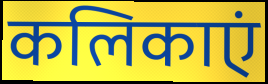
कलिकाएं